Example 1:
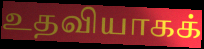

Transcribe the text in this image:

உதவியாகக்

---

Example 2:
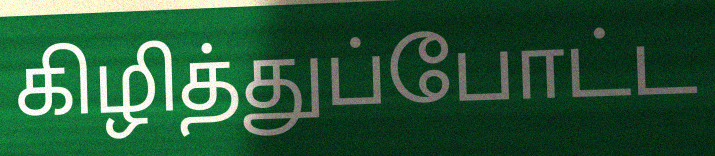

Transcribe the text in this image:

கிழித்துப்போட்ட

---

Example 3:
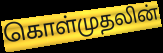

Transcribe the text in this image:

கொள்முதலின்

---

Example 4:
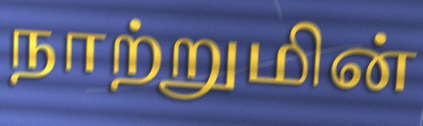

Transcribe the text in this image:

நாற்றுமின்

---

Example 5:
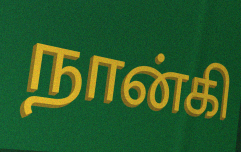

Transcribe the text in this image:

நான்கி